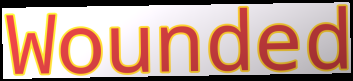
Wounded